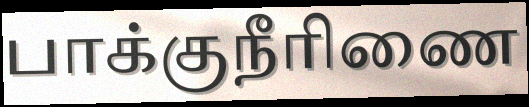
பாக்குநீரிணை